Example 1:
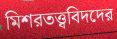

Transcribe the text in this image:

মিশরতত্ত্ববিদদের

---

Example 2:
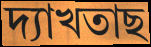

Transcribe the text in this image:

দ্যাখতাছ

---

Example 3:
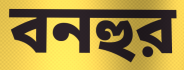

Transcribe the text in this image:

বনহুর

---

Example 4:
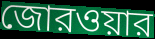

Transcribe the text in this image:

জোরওয়ার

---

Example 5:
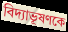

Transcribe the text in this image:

বিদ্যাভূষণকে